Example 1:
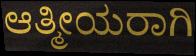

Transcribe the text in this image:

ಆತ್ಮೀಯರಾಗಿ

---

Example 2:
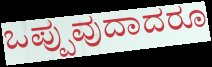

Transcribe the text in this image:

ಒಪ್ಪುವುದಾದರೂ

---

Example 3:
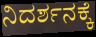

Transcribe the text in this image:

ನಿದರ್ಶನಕ್ಕೆ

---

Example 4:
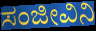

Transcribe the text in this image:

ಸಂಜೀವಿನಿ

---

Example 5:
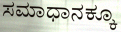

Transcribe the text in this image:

ಸಮಾಧಾನಕ್ಕೂ